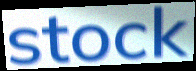
stock